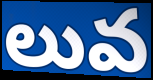
లువ